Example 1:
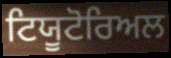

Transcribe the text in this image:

ਟਿਯੂਟੋਰਿਅਲ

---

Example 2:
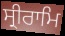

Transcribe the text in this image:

ਸ੍ਰੀਰਾਮਿ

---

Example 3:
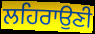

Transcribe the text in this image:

ਲਹਿਰਾਉਣੀ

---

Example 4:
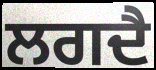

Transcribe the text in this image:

ਲਗਦੈ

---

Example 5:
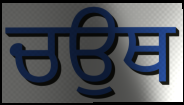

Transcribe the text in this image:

ਚਉਥ